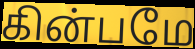
கின்பமே